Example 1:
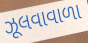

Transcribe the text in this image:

ઝૂલવાવાળા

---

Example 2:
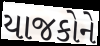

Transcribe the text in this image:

યાજકોને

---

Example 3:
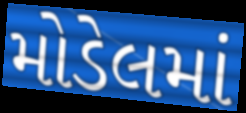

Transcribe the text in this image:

મોડેલમાં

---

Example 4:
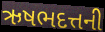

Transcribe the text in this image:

ઋષભદત્તની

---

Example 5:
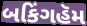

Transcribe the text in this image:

બકિંગહૅમ